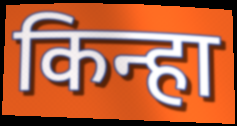
किन्हा